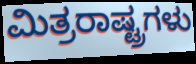
ಮಿತ್ರರಾಷ್ಟ್ರಗಳು